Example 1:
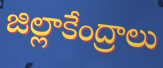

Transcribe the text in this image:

జిల్లాకేంద్రాలు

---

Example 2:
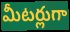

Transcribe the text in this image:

మీటర్లుగా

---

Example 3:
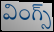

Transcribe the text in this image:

వింగ్స్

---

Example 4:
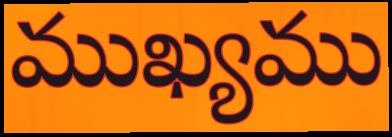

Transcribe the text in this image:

ముఖ్యము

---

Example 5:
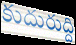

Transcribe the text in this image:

కుదురుద్ది